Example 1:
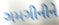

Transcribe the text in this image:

ગમગીનીને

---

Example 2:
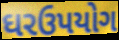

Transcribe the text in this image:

ઘરઉપયોગ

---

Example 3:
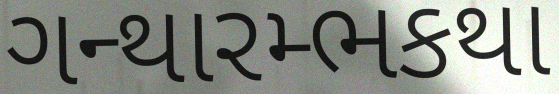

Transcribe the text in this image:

ગન્થારમ્ભકથા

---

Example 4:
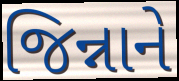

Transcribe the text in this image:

જિન્નાને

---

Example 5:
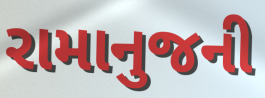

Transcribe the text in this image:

રામાનુજની